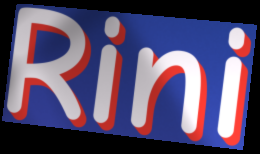
Rini